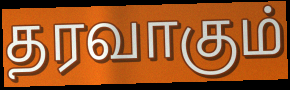
தரவாகும்